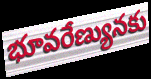
భూవరేణ్యునకు